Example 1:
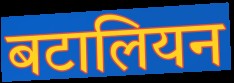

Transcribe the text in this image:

बटालियन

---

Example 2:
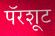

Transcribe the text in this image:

पॅरशूट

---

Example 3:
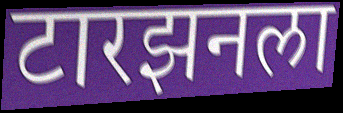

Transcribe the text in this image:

टारझनला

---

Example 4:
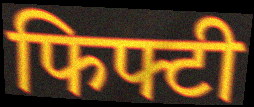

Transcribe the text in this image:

फिफ्टी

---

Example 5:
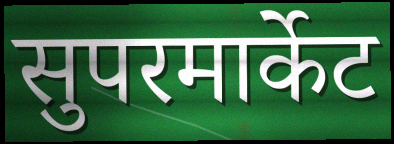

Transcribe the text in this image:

सुपरमार्केट